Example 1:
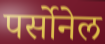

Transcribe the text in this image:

पर्सोनेल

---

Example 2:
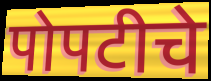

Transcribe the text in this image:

पोपटीचे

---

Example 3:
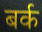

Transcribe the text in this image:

बर्क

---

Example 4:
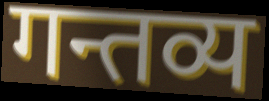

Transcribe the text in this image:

गन्तव्य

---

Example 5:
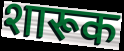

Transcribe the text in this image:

शारूक